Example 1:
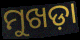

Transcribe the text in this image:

ମୁଖଡ଼ା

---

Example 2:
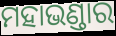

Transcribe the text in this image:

ମହାଭଣ୍ଡାର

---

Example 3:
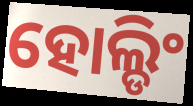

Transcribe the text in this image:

ହୋଲ୍ଡିଂ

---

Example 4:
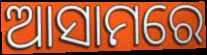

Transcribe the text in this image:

ଆସାମରେ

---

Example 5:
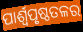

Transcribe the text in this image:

ପାର୍ଶ୍ଵପୃଷ୍ଠତଳର